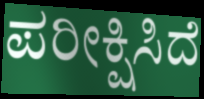
ಪರೀಕ್ಷಿಸಿದೆ